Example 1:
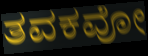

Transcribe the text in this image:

ತವಕವೋ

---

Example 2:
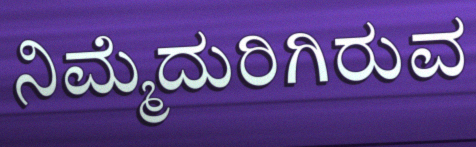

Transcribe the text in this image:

ನಿಮ್ಮೆದುರಿಗಿರುವ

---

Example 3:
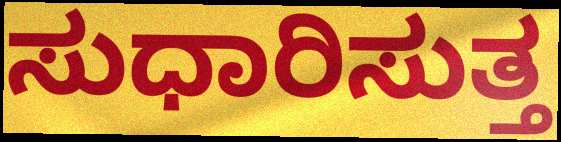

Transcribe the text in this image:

ಸುಧಾರಿಸುತ್ತ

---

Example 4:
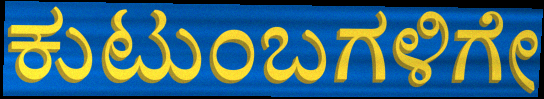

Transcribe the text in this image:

ಕುಟುಂಬಗಳಿಗೇ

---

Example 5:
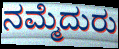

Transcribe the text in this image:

ನಮ್ಮೆದುರು